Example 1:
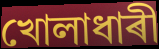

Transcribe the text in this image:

খোলাধাৰী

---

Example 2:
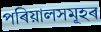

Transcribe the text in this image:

পৰিয়ালসমূহৰ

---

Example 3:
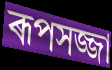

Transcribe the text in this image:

ৰূপসজ্জা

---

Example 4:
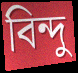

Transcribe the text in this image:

বিন্দু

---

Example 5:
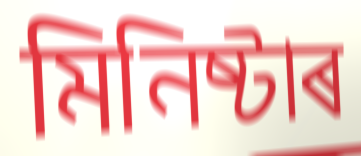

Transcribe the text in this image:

মিনিষ্টাৰ